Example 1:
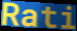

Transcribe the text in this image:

Rati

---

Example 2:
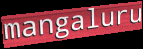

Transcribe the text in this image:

mangaluru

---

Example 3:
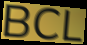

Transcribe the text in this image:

BCL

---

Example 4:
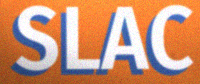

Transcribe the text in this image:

SLAC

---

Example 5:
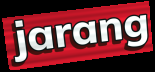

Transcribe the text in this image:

jarang